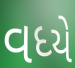
વધ્યે